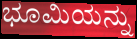
ಭೂಮಿಯನ್ನು